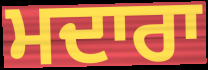
ਮਦਾਰਾ